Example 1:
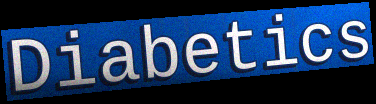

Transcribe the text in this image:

Diabetics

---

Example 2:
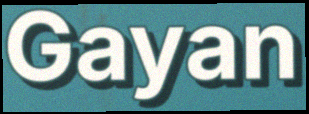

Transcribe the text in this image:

Gayan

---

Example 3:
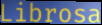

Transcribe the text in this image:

Librosa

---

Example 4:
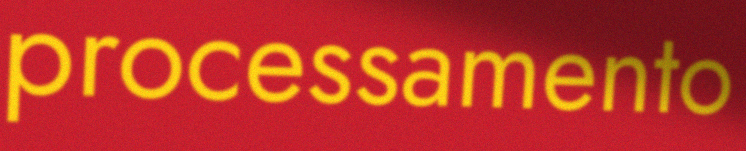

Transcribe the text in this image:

processamento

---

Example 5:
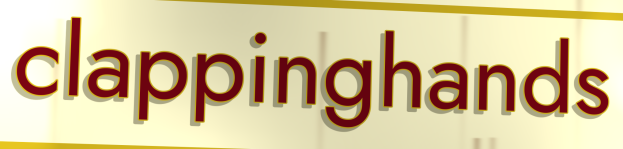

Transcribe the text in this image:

clappinghands